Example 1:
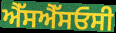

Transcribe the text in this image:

ਐੱਸਐੱਸਓਸੀ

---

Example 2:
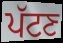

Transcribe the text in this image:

ਪੱਟਣ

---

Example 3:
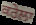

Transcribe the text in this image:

ਕਰੇਲਾ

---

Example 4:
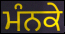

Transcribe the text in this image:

ਮੰਨਕੇ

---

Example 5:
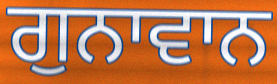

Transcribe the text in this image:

ਗੁਨਾਵਾਨ